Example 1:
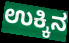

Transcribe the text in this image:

ಉಕ್ಕಿನ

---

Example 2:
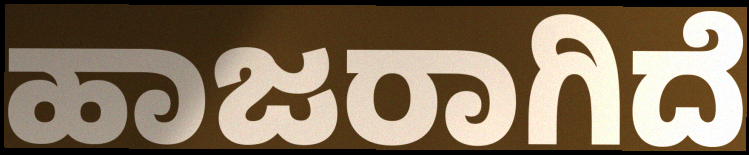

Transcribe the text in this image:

ಹಾಜರಾಗಿದೆ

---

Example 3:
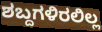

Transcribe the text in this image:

ಶಬ್ದಗಳಿರಲಿಲ್ಲ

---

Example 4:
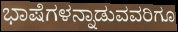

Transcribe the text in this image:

ಭಾಷೆಗಳನ್ನಾಡುವವರಿಗೂ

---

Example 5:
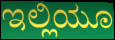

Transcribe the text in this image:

ಇಲ್ಲಿಯೂ